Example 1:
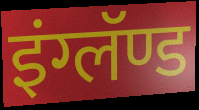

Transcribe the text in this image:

इंग्लॅण्ड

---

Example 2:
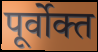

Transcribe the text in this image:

पूर्वोक्त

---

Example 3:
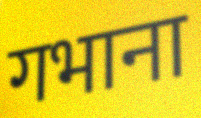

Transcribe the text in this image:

गभाना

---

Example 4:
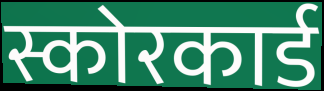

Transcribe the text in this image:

स्कोरकार्ड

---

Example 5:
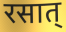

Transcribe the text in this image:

रसात्